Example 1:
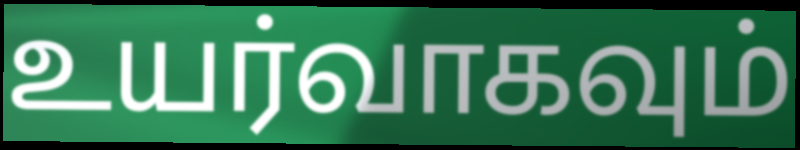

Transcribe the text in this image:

உயர்வாகவும்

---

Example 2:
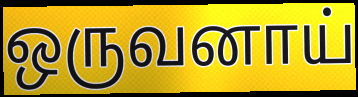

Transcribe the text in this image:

ஒருவனாய்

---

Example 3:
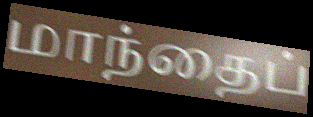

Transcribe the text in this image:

மாந்தைப்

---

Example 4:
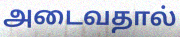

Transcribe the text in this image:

அடைவதால்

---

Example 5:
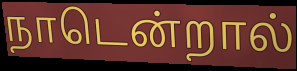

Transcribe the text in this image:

நாடென்றால்